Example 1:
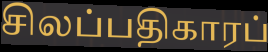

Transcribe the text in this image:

சிலப்பதிகாரப்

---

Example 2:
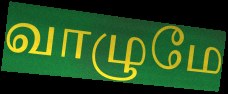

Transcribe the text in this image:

வாழுமே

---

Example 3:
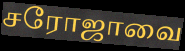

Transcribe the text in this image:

சரோஜாவை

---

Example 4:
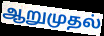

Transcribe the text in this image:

ஆறுமுதல்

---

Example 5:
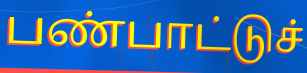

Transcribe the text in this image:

பண்பாட்டுச்